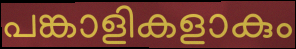
പങ്കാളികളാകും